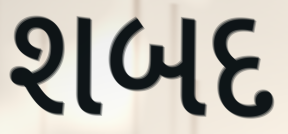
શબદ